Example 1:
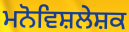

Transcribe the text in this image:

ਮਨੋਵਿਸ਼ਲੇਸ਼ਕ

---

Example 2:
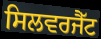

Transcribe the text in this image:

ਸਿਲਵਰਜੈੱਟ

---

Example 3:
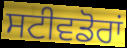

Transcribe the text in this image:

ਸਟੀਵਡੋਰਾਂ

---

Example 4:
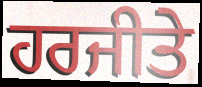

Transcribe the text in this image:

ਹਰਜੀਤੇ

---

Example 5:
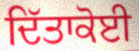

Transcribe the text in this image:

ਦਿੱਤਾਕੋਈ